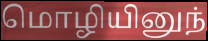
மொழியினுந்